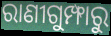
ରାଣୀଗୁମ୍ଫାରୁ